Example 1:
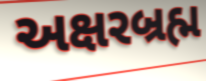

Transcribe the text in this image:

અક્ષરબ્રહ્મ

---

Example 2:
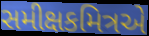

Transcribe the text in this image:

સમીક્ષકમિત્રએ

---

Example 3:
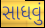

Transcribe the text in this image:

સાધવું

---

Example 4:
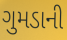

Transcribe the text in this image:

ગુમડાની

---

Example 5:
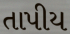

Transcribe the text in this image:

તાપીય